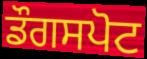
ਡੌਗਸਪੋਟ